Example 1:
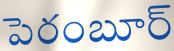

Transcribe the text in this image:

పెరంబూర్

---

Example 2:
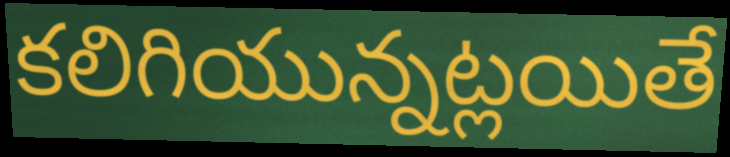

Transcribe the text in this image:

కలిగియున్నట్లయితే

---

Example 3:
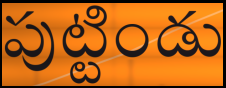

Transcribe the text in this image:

పుట్టిండు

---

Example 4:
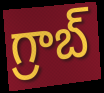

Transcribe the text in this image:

గ్రాబ్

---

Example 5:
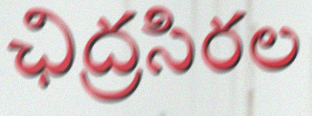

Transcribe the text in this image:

ఛిద్రసిరల